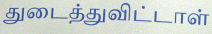
துடைத்துவிட்டாள்